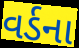
વર્ડના